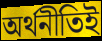
অর্থনীতিই